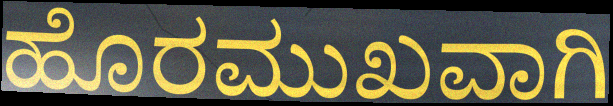
ಹೊರಮುಖವಾಗಿ